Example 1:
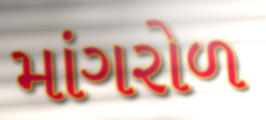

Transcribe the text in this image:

માંગરોળ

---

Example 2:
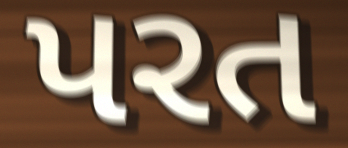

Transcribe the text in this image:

પરત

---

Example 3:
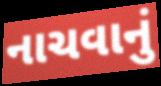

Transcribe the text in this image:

નાચવાનું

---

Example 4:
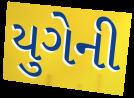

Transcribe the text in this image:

યુગેની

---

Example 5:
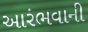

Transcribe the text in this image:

આરંભવાની